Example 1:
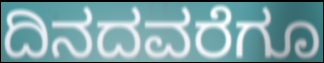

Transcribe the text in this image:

ದಿನದವರೆಗೂ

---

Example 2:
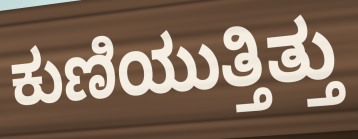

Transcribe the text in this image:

ಕುಣಿಯುತ್ತಿತ್ತು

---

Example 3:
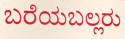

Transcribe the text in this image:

ಬರೆಯಬಲ್ಲರು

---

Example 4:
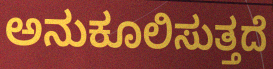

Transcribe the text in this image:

ಅನುಕೂಲಿಸುತ್ತದೆ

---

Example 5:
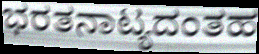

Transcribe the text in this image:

ಭರತನಾಟ್ಯದಂತಹ